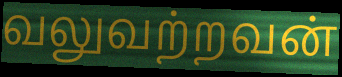
வலுவற்றவன்